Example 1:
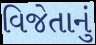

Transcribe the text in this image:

વિજેતાનું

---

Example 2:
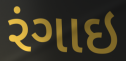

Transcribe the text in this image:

રંગાઇ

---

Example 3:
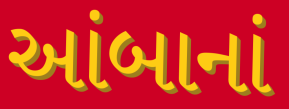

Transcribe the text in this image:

આંબાનાં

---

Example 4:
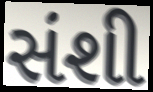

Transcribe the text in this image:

સંશી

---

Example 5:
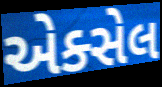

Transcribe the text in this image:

એક્સેલ